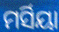
ମର୍ସିୟା